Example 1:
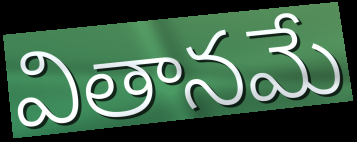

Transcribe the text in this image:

వితానమే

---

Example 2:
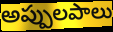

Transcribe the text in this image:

అప్పులపాలు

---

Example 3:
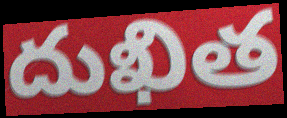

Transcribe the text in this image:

దుఖిత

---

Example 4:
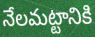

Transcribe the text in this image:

నేలమట్టానికి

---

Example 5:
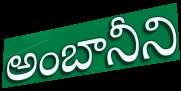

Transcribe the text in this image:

అంబానీని